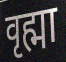
वृह्मा